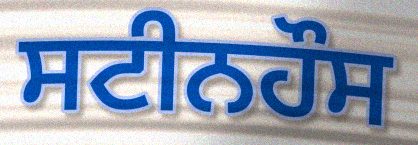
ਸਟੀਨਹੌਸ